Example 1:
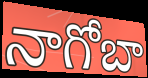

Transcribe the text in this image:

నాగోబా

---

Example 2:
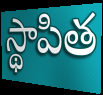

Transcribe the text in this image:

స్థాపిత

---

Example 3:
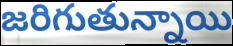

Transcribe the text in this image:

జరిగుతున్నాయి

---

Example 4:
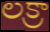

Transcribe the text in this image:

లక్రా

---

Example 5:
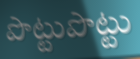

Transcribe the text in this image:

పొట్టుపొట్టు